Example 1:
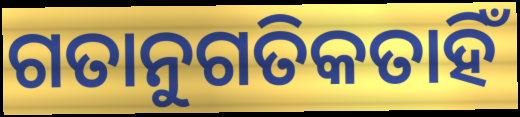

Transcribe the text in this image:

ଗତାନୁଗତିକତାହିଁ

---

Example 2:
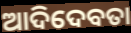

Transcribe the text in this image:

ଆଦିଦେବତା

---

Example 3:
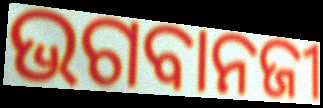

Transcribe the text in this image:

ଭଗବାନଜୀ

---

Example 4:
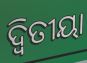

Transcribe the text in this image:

ଦ୍ୱିତୀୟା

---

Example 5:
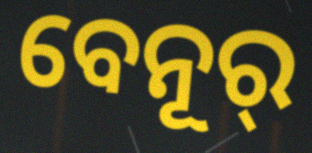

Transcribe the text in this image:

ବେନୂର୍